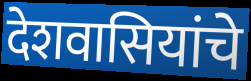
देशवासियांचे